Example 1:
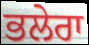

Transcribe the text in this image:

ਭਲੇਰਾ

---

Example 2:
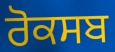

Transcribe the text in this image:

ਰੋਕਸਬ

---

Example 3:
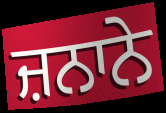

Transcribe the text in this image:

ਜ਼ਨਾਨੇ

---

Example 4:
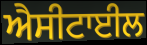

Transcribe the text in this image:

ਐਸੀਟਾਈਲ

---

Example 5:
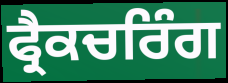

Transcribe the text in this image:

ਫ੍ਰੈਕਚਰਿੰਗ